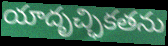
యాదృచ్ఛికతను